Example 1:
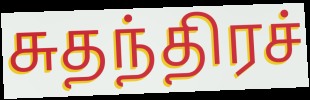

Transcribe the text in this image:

சுதந்திரச்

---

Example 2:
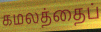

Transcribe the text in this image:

கமலத்தைப்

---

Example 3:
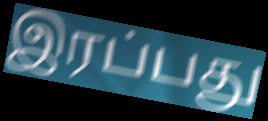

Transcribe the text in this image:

இரப்பது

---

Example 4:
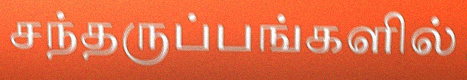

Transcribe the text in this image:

சந்தருப்பங்களில்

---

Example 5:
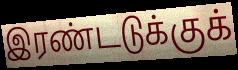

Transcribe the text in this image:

இரண்டடுக்குக்